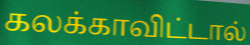
கலக்காவிட்டால்